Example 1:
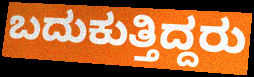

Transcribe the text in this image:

ಬದುಕುತ್ತಿದ್ದರು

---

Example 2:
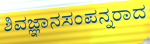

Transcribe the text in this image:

ಶಿವಜ್ಞಾನಸಂಪನ್ನರಾದ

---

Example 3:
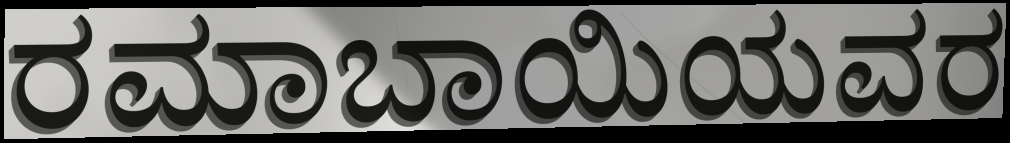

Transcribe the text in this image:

ರಮಾಬಾಯಿಯವರ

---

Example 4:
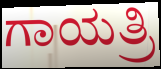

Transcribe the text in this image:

ಗಾಯತ್ರಿ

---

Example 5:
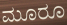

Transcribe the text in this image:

ಮೂರೂ